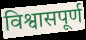
विश्वासपूर्ण